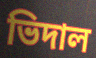
ভিদাল